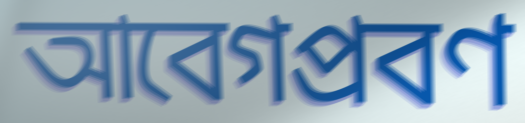
আবেগপ্রবণ